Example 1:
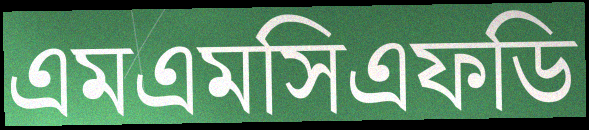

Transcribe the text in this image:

এমএমসিএফডি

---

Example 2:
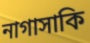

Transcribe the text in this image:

নাগাসাকি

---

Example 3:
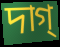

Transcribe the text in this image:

দাগ্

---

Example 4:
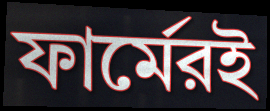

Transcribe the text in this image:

ফার্মেরই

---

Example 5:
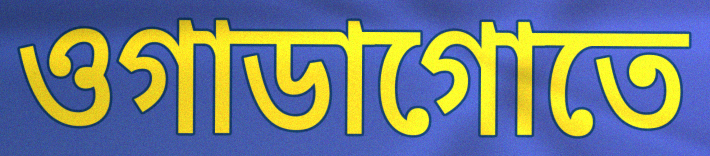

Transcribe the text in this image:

ওগাডাগোতে